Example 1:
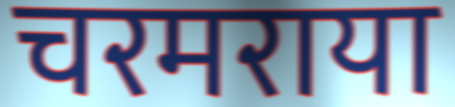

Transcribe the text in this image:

चरमराया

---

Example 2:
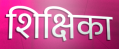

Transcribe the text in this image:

शिक्षिका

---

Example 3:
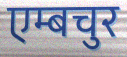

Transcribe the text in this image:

एम्बचुर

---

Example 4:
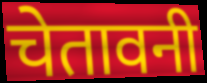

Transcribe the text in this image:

चेतावनी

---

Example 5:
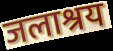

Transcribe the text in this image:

जलाश्रय